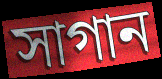
সাগান